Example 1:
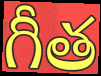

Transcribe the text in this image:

గీత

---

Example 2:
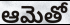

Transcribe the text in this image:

ఆమెతో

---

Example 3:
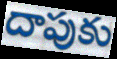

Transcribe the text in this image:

దాపుకు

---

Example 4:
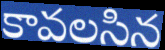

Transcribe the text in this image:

కావలసిన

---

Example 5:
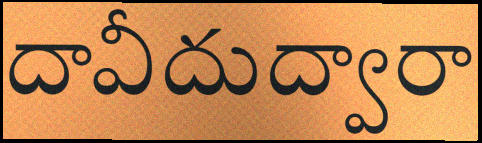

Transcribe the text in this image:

దావీదుద్వారా